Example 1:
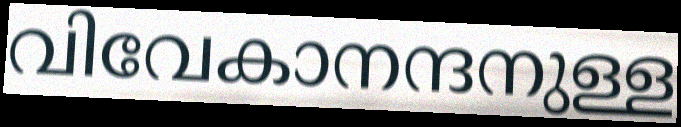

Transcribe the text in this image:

വിവേകാനന്ദനുള്ള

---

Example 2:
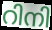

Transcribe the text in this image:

റിനി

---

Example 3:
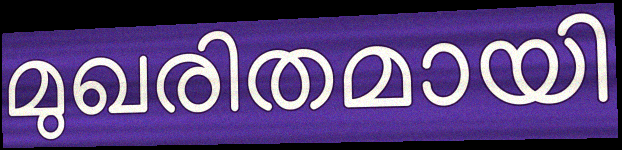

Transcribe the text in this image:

മുഖരിതമായി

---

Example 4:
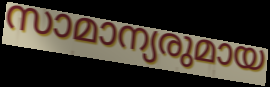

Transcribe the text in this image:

സാമാന്യരുമായ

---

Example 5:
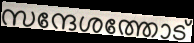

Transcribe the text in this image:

സന്ദേശത്തോട്